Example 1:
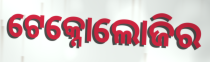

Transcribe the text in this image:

ଟେକ୍ନୋଲୋଜିର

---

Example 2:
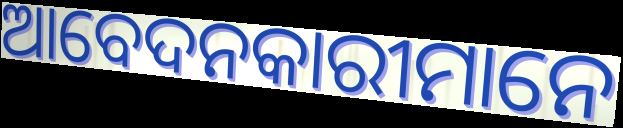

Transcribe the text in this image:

ଆବେଦନକାରୀମାନେ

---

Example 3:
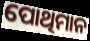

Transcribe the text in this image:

ପୋଥିମାନ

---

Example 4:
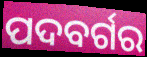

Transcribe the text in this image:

ପଦବର୍ଗର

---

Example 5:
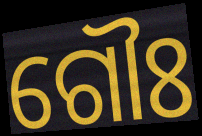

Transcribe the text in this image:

ଗୌଃ